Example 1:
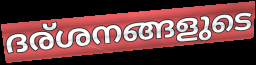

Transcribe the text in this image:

ദര്ശനങ്ങളുടെ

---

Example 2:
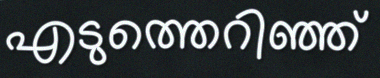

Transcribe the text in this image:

എടുത്തെറിഞ്ഞ്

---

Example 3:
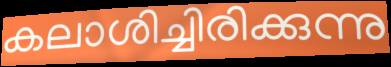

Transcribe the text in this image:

കലാശിച്ചിരിക്കുന്നു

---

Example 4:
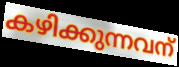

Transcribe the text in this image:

കഴിക്കുന്നവന്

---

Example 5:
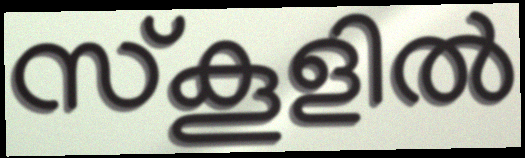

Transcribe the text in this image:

സ്കൂളിൽ